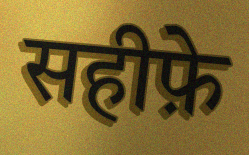
सहीफ़े